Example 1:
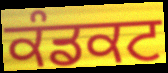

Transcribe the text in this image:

ਕੰਡਕਟ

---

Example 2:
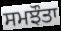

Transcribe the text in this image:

ਸਮਝੌਤਾ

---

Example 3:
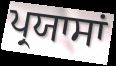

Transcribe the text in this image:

ਪ੍ਰਯਾਸਾਂ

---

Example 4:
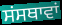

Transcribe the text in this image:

ਸਂਸਥਾਵਾਂ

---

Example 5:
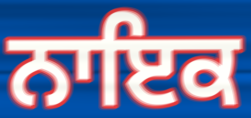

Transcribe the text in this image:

ਨਾਇਕ